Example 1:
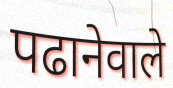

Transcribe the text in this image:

पढानेवाले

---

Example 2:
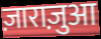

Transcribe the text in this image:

ज़ाराज़ुआ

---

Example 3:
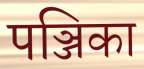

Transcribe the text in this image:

पञ्जिका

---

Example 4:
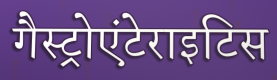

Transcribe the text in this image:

गैस्ट्रोएंटेराइटिस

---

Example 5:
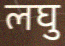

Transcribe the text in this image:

लघु